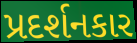
પ્રદર્શનકાર